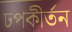
ঢপকীর্তন